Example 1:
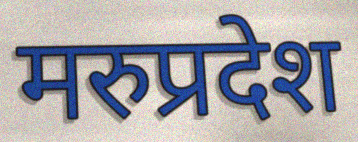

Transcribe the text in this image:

मरुप्रदेश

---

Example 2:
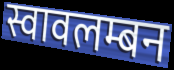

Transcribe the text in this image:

स्वावलम्बन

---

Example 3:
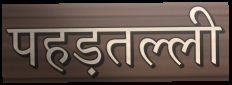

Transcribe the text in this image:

पहड़तल्ली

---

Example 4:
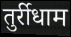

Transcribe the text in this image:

तुर्रीधाम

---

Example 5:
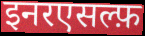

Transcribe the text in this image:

इनरएसल्फ़